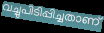
വച്ചുപിടിപ്പിച്ചതാണ്